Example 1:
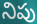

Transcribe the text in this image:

నిపు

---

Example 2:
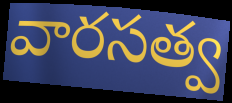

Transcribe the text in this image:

వారసత్వ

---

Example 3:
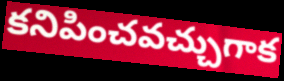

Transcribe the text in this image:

కనిపించవచ్చుగాక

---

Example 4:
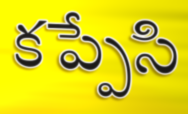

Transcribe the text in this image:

కప్పేసి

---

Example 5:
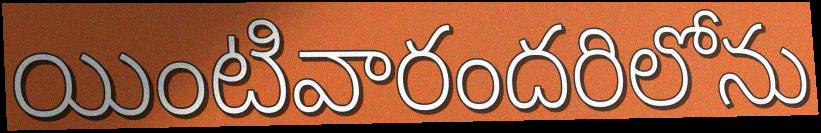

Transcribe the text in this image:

యింటివారందరిలోను